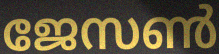
ജേസൺ